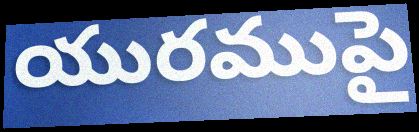
యురముపై